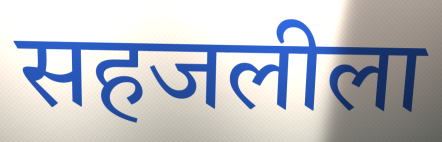
सहजलीला